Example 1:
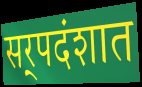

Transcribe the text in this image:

सर्पदंशात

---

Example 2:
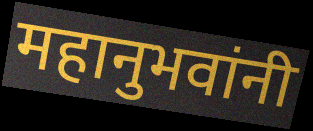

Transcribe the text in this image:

महानुभवांनी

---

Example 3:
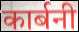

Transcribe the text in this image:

कार्बनी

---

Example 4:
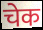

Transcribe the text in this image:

चेक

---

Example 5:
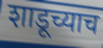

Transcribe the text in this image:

शाडूच्याच